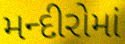
મન્દીરોમાં